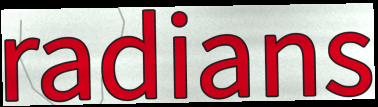
radians